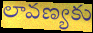
లావణ్యకు